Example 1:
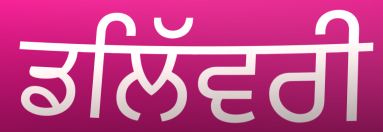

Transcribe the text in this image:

ਡਲਿੱਵਰੀ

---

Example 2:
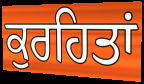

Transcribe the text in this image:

ਕੁਰਹਿਤਾਂ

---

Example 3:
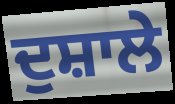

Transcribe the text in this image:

ਦੁਸ਼ਾਲੇ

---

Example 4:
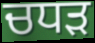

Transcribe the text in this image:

ਚਧੜ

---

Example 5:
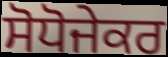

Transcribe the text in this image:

ਸੋਧੋਜੇਕਰ